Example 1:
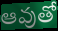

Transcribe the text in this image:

ఆవుతో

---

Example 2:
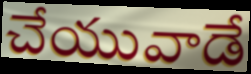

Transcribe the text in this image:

చేయువాడే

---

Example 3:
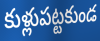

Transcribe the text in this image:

కుళ్లుపట్టకుండ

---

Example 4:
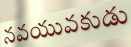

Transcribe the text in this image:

నవయువకుడు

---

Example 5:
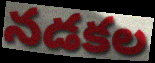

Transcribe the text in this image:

నడకల